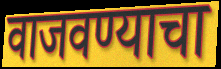
वाजवण्याचा